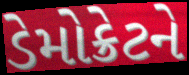
ડેમોક્રેટને